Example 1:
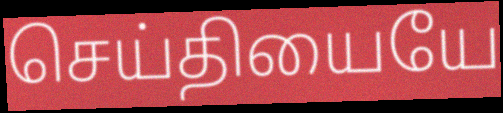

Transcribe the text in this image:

செய்தியையே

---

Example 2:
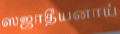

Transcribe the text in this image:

ஸஜாதீயனாய்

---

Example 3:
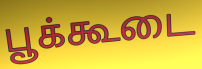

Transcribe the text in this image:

பூக்கூடை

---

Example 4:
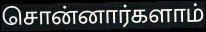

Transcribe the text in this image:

சொன்னார்களாம்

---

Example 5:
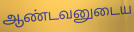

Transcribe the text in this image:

ஆண்டவனுடைய